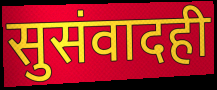
सुसंवादही